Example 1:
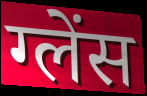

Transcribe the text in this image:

ग्लेंस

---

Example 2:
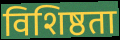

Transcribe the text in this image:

विशिष्ठता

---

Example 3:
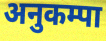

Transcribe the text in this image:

अनुकम्पा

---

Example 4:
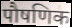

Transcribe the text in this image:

पौषणिक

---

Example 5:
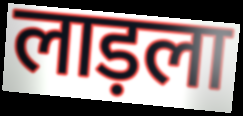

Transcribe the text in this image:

लाड़ला